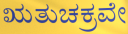
ಋತುಚಕ್ರವೇ